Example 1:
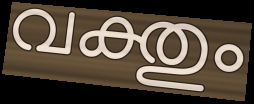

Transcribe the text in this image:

വക്തും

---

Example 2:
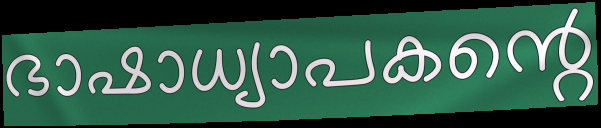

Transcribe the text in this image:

ഭാഷാധ്യാപകന്റെ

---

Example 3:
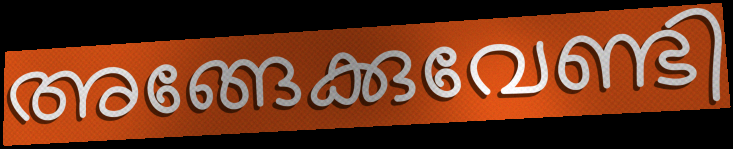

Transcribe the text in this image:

അങ്ങേക്കുവേണ്ടി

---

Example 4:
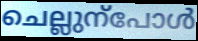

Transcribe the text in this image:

ചെല്ലുന്പോൾ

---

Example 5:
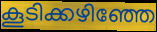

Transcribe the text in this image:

കൂടിക്കഴിഞ്ഞേ